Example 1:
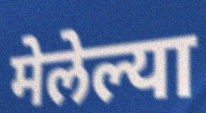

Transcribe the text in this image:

मेलेल्या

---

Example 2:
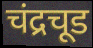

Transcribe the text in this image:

चंद्रचूड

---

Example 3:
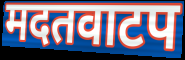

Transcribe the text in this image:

मदतवाटप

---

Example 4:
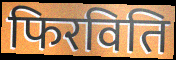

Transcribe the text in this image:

फिरविति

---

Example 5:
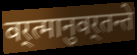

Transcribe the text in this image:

वर्त्मानुवर्तन्ते